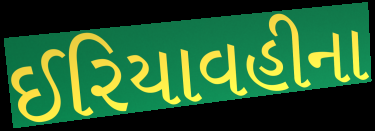
ઈરિયાવહીના